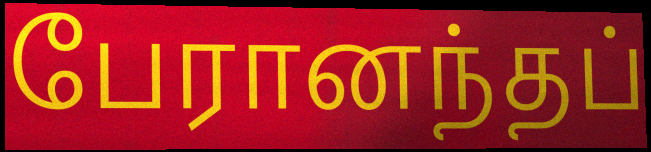
பேரானந்தப்